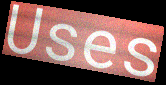
Uses